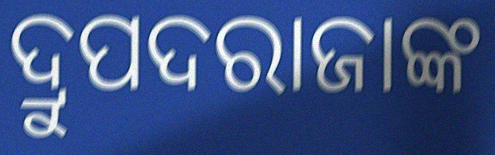
ଦ୍ରୁପଦରାଜାଙ୍କ